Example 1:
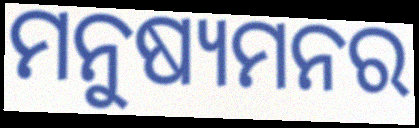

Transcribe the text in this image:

ମନୁଷ୍ୟମନର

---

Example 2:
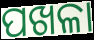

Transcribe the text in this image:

ପଖଳା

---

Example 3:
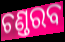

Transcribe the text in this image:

ଚଣ୍ଡରବ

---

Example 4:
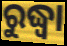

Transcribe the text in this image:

ରୁଦ୍ଧ୍ୱା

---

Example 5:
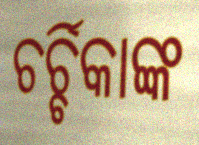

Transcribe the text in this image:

ଚର୍ଚ୍ଚିକାଙ୍କ